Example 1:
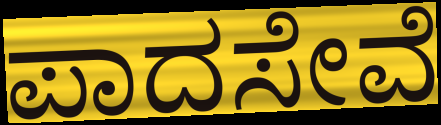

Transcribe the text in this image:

ಪಾದಸೇವೆ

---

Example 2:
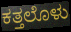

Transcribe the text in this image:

ಕತ್ತಲೊಳು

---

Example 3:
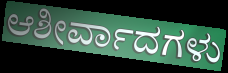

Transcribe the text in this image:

ಆಶೀರ್ವಾದಗಳು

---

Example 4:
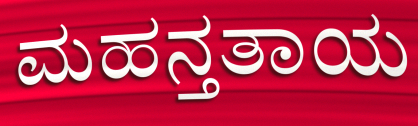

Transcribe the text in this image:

ಮಹನ್ತತಾಯ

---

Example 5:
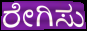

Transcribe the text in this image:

ರೇಗಿಸು